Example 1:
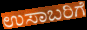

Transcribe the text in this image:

ಉಸಾಬರಿಗೆ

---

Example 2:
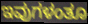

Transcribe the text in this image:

ಇವುಗಳಂತೂ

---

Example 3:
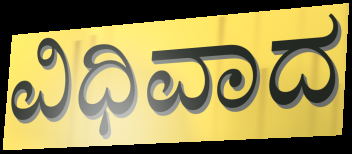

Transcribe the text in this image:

ವಿಧಿವಾದ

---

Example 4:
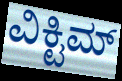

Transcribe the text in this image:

ವಿಕ್ಟಿಮ್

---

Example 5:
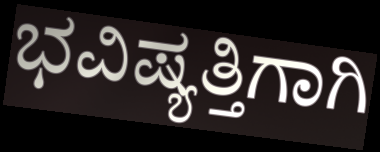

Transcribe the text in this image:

ಭವಿಷ್ಯತ್ತಿಗಾಗಿ